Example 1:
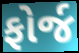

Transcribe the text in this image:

ફોર્જ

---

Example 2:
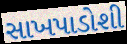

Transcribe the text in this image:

સાખપાડોશી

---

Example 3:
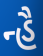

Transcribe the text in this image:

ન્હૈ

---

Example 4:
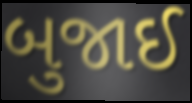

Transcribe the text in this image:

બુજાઈ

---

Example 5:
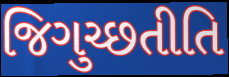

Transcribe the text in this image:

જિગુચ્છતીતિ